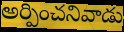
అర్పించనివాడు